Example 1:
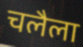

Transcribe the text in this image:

चलैला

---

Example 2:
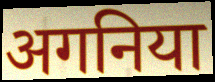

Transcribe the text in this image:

अगनिया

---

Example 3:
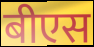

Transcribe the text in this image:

बीएस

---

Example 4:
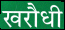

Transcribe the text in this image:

खरौधी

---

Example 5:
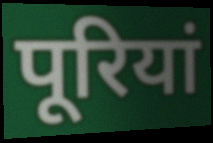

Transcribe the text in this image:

पूरियां